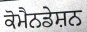
ਕੋਮੈਨਡੇਸ਼ਨ